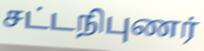
சட்டநிபுணர்